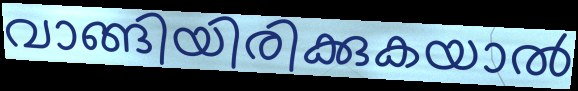
വാങ്ങിയിരിക്കുകയാൽ